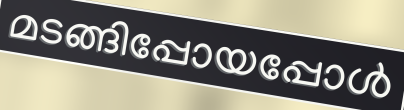
മടങ്ങിപ്പോയപ്പോൾ